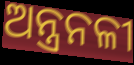
ଅନ୍ତ୍ରନଳୀ